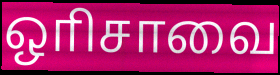
ஒரிசாவை